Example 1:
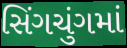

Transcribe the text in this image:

સિંગચુંગમાં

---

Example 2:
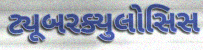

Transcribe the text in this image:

ટ્યૂબરક્યુલોસિસ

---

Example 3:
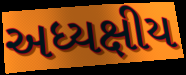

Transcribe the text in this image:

અધ્યક્ષીય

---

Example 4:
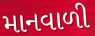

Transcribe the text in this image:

માનવાળી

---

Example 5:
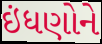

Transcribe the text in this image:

ઇંધણોને